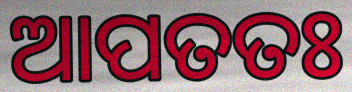
ଆପତତଃ